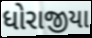
ધોરાજીયા